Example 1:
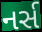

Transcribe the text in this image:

નર્સ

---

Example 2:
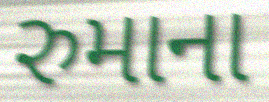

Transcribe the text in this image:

રુમાના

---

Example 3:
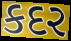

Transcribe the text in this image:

કદર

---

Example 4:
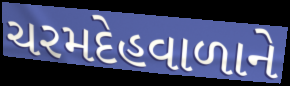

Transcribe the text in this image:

ચરમદેહવાળાને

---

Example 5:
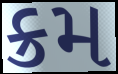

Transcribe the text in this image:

ક્રમ